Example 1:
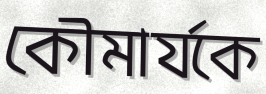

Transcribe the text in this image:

কৌমার্যকে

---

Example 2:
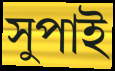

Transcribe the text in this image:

সুপাই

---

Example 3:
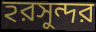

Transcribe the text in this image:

হরসুন্দর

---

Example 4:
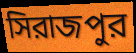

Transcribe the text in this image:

সিরাজপুর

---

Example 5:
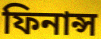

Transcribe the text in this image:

ফিনান্স